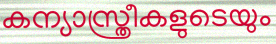
കന്യാസ്ത്രീകളുടെയും